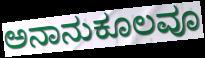
ಅನಾನುಕೂಲವೂ